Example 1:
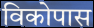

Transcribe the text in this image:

विकोपास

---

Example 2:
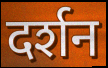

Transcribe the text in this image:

दर्शन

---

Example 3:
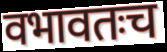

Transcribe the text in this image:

वभावतःच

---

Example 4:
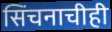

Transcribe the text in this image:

सिंचनाचीही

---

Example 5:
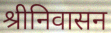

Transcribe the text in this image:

श्रीनिवासन